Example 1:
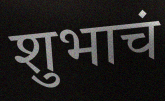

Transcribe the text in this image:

शुभाचं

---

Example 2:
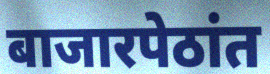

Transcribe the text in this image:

बाजारपेठांत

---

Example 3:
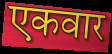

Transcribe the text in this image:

एकवार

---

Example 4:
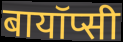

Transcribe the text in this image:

बायॉप्सी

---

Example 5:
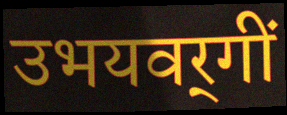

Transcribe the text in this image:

उभयवर्गीं